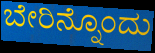
ಬೇರಿನ್ನೊಂದು